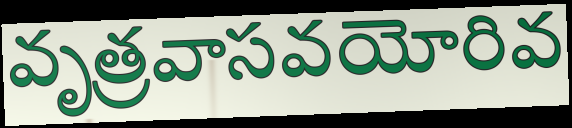
వృత్రవాసవయోరివ